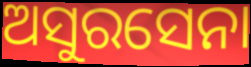
ଅସୁରସେନା